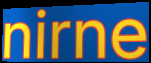
nirne